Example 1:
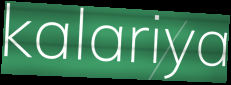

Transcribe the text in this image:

kalariya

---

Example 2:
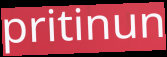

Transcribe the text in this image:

pritinun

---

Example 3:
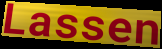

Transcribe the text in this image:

Lassen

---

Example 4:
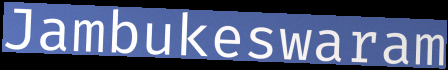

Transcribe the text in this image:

Jambukeswaram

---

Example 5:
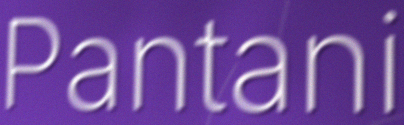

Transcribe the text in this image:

Pantani